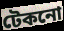
টেকনো